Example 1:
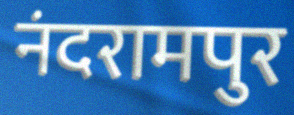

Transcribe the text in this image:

नंदरामपुर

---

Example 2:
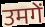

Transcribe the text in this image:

उमगें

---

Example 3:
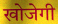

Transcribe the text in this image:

खोजेगी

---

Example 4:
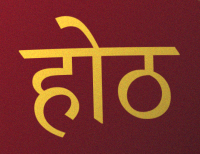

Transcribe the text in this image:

होठ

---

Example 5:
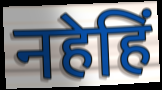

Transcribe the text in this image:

नहेहिं